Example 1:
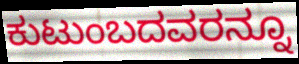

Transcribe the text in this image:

ಕುಟುಂಬದವರನ್ನೂ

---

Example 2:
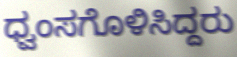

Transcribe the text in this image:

ಧ್ವಂಸಗೊಳಿಸಿದ್ದರು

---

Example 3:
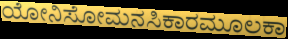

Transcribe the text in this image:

ಯೋನಿಸೋಮನಸಿಕಾರಮೂಲಕಾ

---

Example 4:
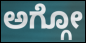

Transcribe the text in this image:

ಅಗ್ಗೋ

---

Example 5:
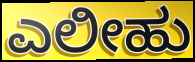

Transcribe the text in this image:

ಎಲೀಹು